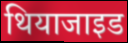
थियाजाइड